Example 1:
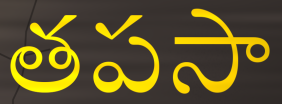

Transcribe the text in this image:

తపసా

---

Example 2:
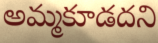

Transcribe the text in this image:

అమ్మకూడదని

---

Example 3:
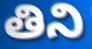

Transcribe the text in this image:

తిని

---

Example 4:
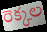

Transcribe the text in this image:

రెక్కల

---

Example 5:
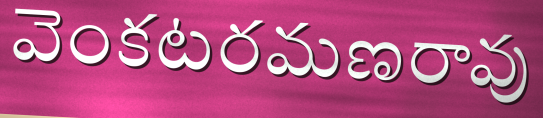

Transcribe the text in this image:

వెంకటరమణరావు